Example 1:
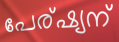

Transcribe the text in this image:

പേര്ഷ്യന്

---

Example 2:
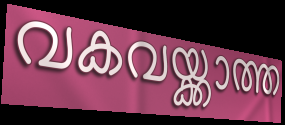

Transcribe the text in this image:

വകവയ്ക്കാത്ത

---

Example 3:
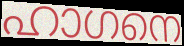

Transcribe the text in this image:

ഹാഗനെ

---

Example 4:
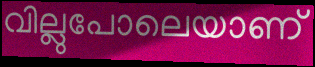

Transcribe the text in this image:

വില്ലുപോലെയാണ്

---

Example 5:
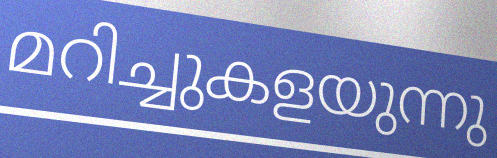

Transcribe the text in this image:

മറിച്ചുകളയുന്നു